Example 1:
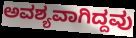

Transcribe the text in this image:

ಅವಶ್ಯವಾಗಿದ್ದವು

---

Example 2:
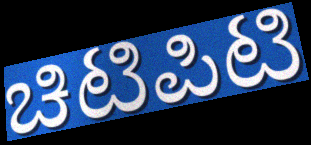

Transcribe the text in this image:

ಚಿಟಿಪಿಟಿ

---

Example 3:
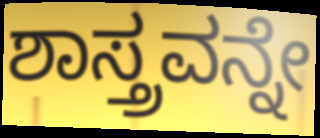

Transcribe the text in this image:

ಶಾಸ್ತ್ರವನ್ನೇ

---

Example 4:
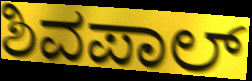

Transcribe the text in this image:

ಶಿವಪಾಲ್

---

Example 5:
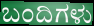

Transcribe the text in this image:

ಬಂದಿಗಳು